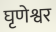
घृणेश्वर